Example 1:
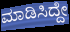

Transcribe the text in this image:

ಮಾಡಿಸಿದ್ದೇ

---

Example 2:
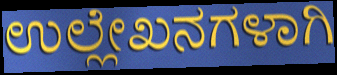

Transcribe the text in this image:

ಉಲ್ಲೇಖನಗಳಾಗಿ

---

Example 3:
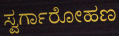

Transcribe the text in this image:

ಸ್ವರ್ಗಾರೋಹಣ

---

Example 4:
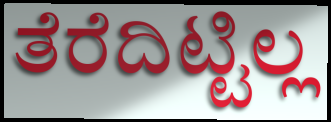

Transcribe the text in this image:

ತೆರೆದಿಟ್ಟಿಲ್ಲ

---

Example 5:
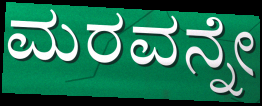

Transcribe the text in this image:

ಮರವನ್ನೇ